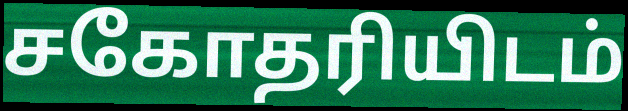
சகோதரியிடம்